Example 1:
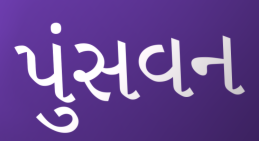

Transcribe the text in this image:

પુંસવન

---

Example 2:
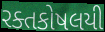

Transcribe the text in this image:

રક્તકોષલયી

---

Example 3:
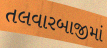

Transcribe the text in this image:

તલવારબાજીમાં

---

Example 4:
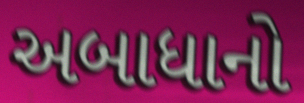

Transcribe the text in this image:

અબાધાનો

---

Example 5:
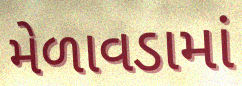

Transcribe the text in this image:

મેળાવડામાં